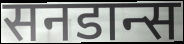
सनडान्स